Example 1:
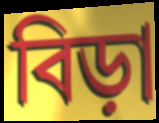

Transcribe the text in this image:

বিড়া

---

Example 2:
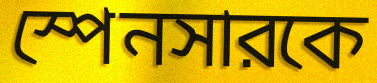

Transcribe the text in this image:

স্পেনসারকে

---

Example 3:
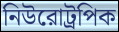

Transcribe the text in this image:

নিউরোট্রপিক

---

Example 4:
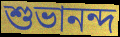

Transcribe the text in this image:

শুভানন্দ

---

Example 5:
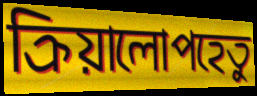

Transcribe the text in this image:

ক্রিয়ালোপহেতু